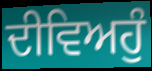
ਦੀਵਿਅਹੁੰ